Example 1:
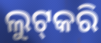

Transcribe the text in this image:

ଲୁଟ୍‌କରି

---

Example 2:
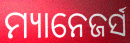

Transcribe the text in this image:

ମ୍ୟାନେଜର୍ସ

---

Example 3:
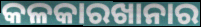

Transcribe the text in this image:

କଳକାରଖାନାର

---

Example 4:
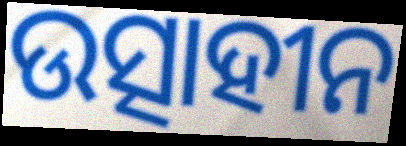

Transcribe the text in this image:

ଉତ୍ସାହୀନ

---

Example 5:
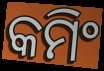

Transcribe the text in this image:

କମିଂ